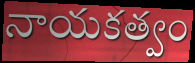
నాయకత్వం